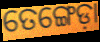
ତେଙ୍ଗେଡ଼ା